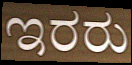
ಇರರು